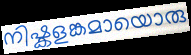
നിഷ്കളങ്കമായൊരു